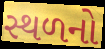
સ્થળનો